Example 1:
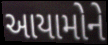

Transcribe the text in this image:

આયામોને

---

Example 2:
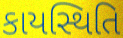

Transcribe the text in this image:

કાયસ્થિતિ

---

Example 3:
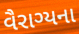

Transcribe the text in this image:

વૈરાગ્યના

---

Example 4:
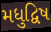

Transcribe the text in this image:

મધુદ્વિષ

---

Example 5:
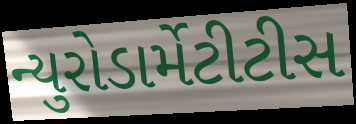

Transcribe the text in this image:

ન્યુરોડાર્મેટીટીસ